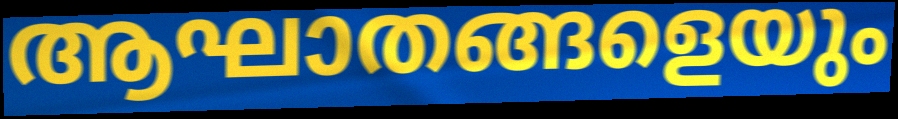
ആഘാതങ്ങളെയും